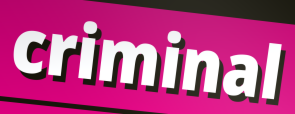
criminal